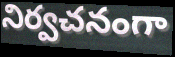
నిర్వచనంగా